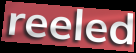
reeled